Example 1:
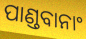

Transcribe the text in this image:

ପାଣ୍ଡବାନାଂ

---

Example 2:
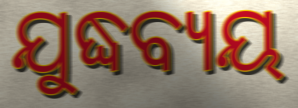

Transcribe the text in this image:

ଯୁଦ୍ଧବ୍ୟୟ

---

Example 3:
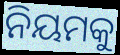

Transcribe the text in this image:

ନିୟମକୁ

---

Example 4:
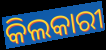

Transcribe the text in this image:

କିଲକାରୀ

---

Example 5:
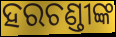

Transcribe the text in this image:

ହରଚଣ୍ଡୀଙ୍କ